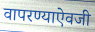
वापरण्याऐवजी